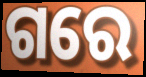
ଗରେ